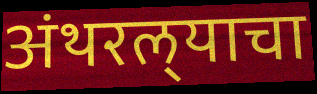
अंथरल्याचा